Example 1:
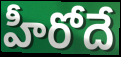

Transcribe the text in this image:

హీరోదే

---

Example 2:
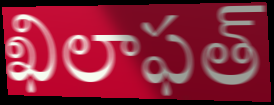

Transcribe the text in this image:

ఖిలాఫత్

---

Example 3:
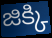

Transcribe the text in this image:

జిక్కి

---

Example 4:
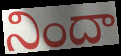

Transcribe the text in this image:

నిందా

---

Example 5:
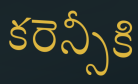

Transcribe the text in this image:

కరెన్సీకి